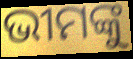
ଭୀମଙ୍କୁ